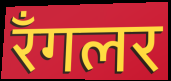
रॅंगलर